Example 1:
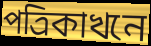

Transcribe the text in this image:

পত্ৰিকাখনে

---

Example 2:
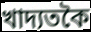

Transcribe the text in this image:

খাদ্যতকৈ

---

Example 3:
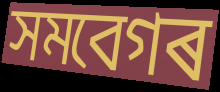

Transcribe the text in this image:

সমবেগৰ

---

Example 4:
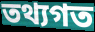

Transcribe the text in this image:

তথ্যগত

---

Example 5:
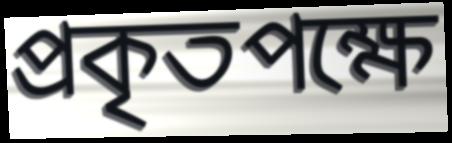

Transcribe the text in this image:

প্ৰকৃতপক্ষে